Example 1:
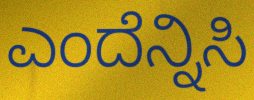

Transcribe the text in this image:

ಎಂದೆನ್ನಿಸಿ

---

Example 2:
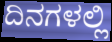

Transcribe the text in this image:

ದಿನಗಳಲ್ಲಿ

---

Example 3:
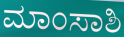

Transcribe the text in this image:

ಮಾಂಸಾಶಿ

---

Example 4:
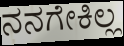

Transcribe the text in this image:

ನನಗೇಕಿಲ್ಲ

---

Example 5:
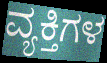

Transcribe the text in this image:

ವ್ಯಕ್ತಿಗಳ